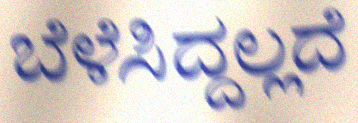
ಬೆಳೆಸಿದ್ದಲ್ಲದೆ